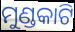
ମୁଣ୍ଡକାଟି